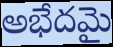
అభేదమై